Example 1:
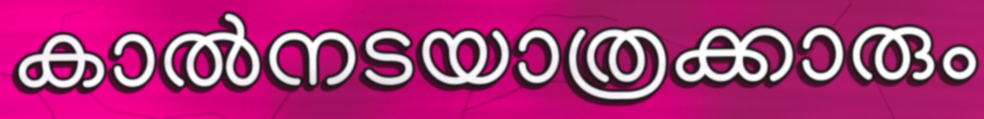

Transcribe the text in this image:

കാൽനടയാത്രക്കാരും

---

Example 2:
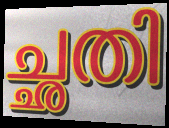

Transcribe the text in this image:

ച്ഛതി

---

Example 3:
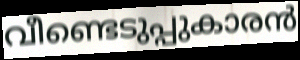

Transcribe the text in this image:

വീണ്ടെടുപ്പുകാരൻ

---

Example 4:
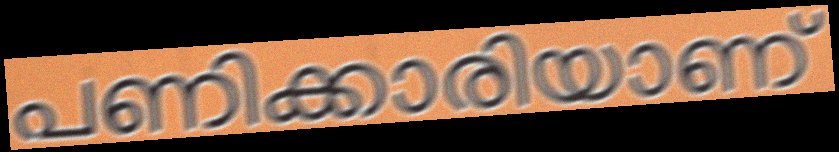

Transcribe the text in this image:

പണിക്കാരിയാണ്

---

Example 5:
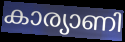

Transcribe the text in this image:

കാര്യാണി